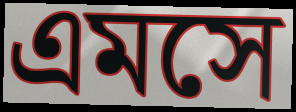
এমসে